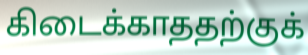
கிடைக்காததற்குக்